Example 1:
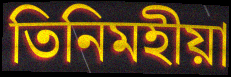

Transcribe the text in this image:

তিনিমহীয়া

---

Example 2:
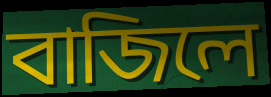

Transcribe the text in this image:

বাজিলে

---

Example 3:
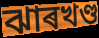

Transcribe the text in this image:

ঝাৰখণ্ড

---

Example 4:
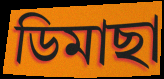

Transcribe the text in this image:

ডিমাছা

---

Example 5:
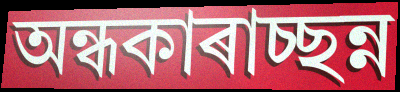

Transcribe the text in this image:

অন্ধকাৰাচ্ছন্ন